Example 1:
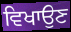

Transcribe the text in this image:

ਵਿਖਾਉਣ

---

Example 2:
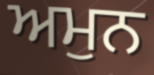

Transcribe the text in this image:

ਅਮੁਨ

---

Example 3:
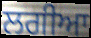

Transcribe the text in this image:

ਲਗੀਆ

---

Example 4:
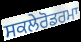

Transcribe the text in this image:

ਸਕਲੇਰੋਡਰਮਾ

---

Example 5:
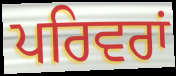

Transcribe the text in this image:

ਪਰਿਵਰਾਂ